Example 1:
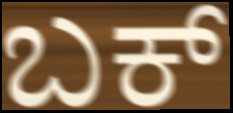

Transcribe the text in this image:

ಬಕ್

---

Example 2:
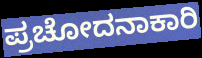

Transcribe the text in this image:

ಪ್ರಚೋದನಾಕಾರಿ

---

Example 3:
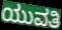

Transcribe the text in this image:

ಯುವತಿ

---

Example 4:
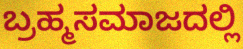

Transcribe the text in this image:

ಬ್ರಹ್ಮಸಮಾಜದಲ್ಲಿ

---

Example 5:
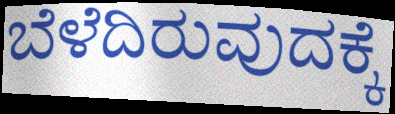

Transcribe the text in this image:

ಬೆಳೆದಿರುವುದಕ್ಕೆ